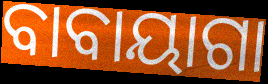
ବାବାୟାଗା